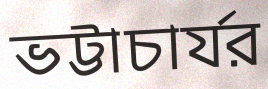
ভট্টাচার্যর